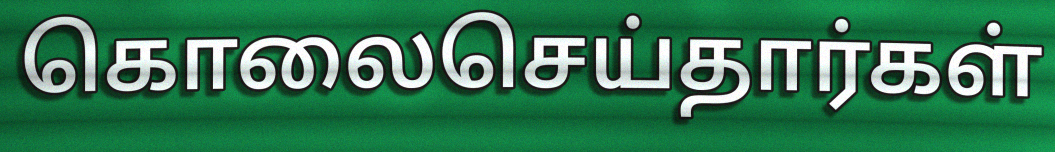
கொலைசெய்தார்கள்